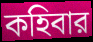
কহিবার